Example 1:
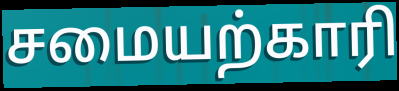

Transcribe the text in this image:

சமையற்காரி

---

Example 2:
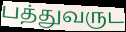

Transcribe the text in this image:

பத்துவருட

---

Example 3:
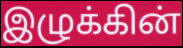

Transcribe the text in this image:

இழுக்கின்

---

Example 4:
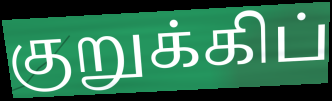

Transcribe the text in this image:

குறுக்கிப்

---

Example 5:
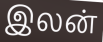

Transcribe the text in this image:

இலன்